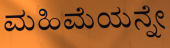
ಮಹಿಮೆಯನ್ನೇ